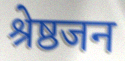
श्रेष्ठजन